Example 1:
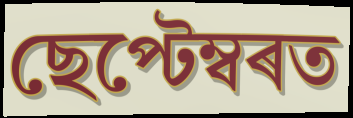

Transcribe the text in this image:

ছেপ্টেম্বৰত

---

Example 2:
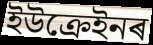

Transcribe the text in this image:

ইউক্ৰেইনৰ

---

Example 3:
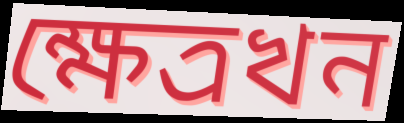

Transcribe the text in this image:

ক্ষেত্ৰখন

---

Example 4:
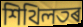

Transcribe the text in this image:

শিথিলতৰ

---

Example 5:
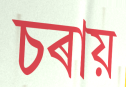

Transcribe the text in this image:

চৰায়